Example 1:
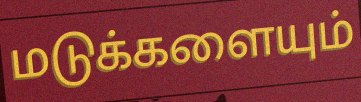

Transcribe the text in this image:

மடுக்களையும்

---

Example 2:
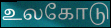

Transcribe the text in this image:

உலகோடு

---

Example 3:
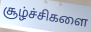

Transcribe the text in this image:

சூழ்ச்சிகளை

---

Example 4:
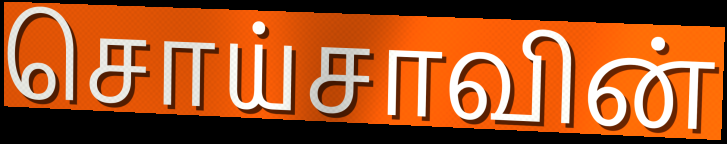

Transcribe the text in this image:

சொய்சாவின்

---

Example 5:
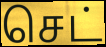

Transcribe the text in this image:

செட்